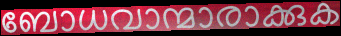
ബോധവാന്മാരാക്കുക